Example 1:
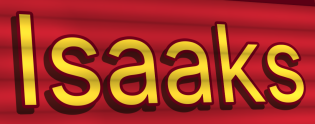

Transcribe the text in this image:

Isaaks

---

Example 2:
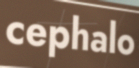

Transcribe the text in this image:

cephalo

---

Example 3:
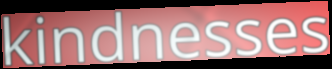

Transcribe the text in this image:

kindnesses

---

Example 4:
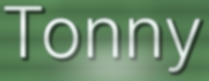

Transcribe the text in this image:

Tonny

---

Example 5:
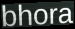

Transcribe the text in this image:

bhora